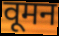
वूमन